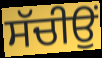
ਸੱਚੀਉਂ